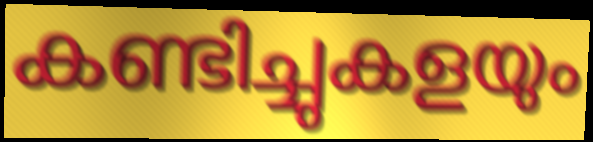
കണ്ടിച്ചുകളയും